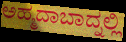
ಅಹ್ಮದಾಬಾದ್ನಲ್ಲಿ